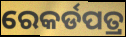
ରେକର୍ଡପତ୍ର